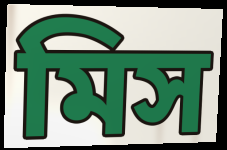
মিস